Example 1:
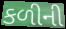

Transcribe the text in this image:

કળીની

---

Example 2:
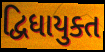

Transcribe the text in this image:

દ્વિધાયુક્ત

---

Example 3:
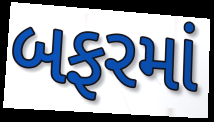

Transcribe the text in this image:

બફરમાં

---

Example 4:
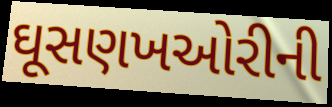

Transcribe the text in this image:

ઘૂસણખઓરીની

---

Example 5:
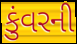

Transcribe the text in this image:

કુંવરની